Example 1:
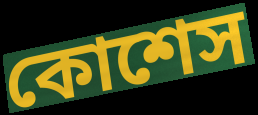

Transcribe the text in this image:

কোশেস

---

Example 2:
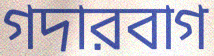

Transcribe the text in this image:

গদারবাগ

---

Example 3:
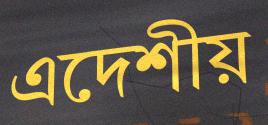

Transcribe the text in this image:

এদেশীয়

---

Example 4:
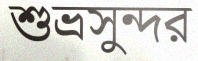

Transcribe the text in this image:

শুভ্রসুন্দর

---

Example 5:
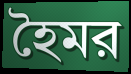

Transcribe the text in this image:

হৈমর